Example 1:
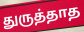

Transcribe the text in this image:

துருத்தாத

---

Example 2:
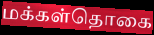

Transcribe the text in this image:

மக்கள்தொகை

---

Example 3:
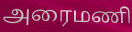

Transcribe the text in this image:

அரைமணி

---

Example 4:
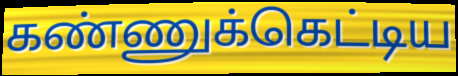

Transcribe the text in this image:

கண்ணுக்கெட்டிய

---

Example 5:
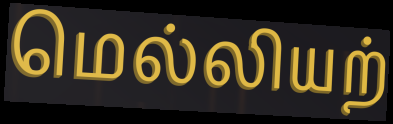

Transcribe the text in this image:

மெல்லியற்